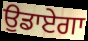
ਉਡਾਏਗਾ